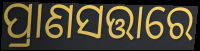
ପ୍ରାଣସତ୍ତାରେ